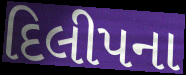
દિલીપના